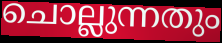
ചൊല്ലുന്നതും